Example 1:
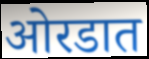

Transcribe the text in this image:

ओरडात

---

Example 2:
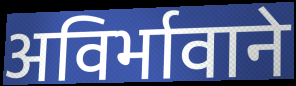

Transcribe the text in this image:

अविर्भावाने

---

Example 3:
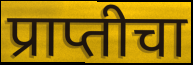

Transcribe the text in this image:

प्राप्तीचा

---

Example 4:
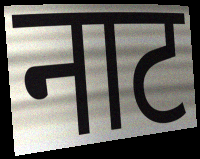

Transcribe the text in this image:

नाट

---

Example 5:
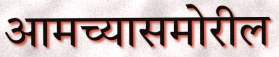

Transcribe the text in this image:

आमच्यासमोरील